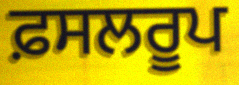
ਫ਼ਸਲਰੂਪ